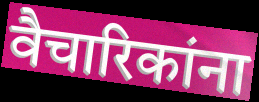
वैचारिकांना